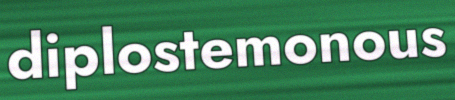
diplostemonous